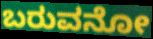
ಬರುವನೋ